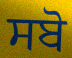
ਸਬੋ